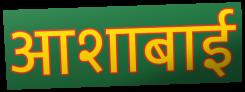
आशाबाई